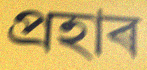
প্ৰহাৰ